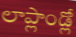
లాప్లాండ్లో